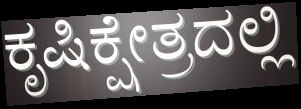
ಕೃಷಿಕ್ಷೇತ್ರದಲ್ಲಿ